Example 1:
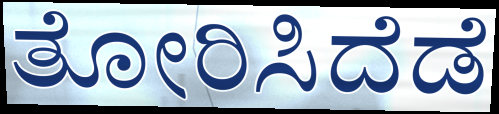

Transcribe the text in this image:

ತೋರಿಸಿದೆಡೆ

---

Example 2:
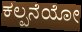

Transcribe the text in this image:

ಕಲ್ಪನೆಯೋ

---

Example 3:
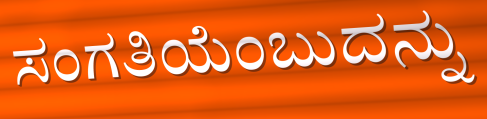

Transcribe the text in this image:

ಸಂಗತಿಯೆಂಬುದನ್ನು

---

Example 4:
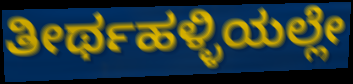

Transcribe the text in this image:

ತೀರ್ಥಹಳ್ಳಿಯಲ್ಲೇ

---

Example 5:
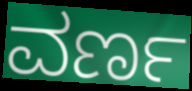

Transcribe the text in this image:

ವರ್ಣ